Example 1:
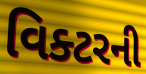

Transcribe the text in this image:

વિક્ટરની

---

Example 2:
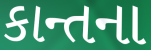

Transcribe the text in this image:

કાન્તના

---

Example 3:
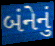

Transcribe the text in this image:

બંનેનું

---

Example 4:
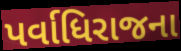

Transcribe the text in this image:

પર્વાધિરાજના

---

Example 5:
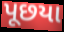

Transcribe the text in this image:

પૂછયા